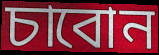
চাবোন